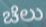
ಚೆಲು